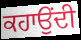
ਕਹਾਉਂਦੀ